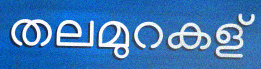
തലമുറകള്